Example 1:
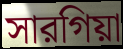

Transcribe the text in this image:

সারগিয়া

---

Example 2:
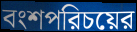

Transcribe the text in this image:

বংশপরিচয়ের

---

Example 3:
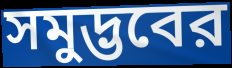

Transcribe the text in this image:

সমুদ্ভবের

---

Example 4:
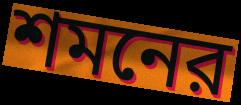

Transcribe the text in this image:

শমনের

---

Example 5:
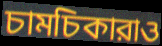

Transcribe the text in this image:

চামচিকারাও